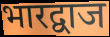
भारद्वाज